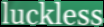
luckless